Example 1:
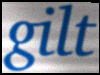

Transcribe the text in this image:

gilt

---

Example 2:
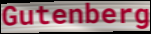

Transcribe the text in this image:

Gutenberg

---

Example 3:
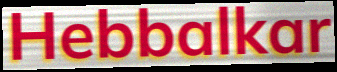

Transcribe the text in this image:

Hebbalkar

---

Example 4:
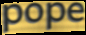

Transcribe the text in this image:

pope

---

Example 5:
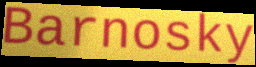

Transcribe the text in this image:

Barnosky